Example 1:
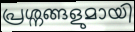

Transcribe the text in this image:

പ്രശ്നങ്ങളുമായി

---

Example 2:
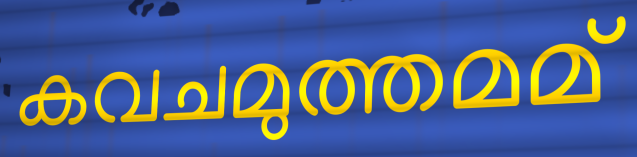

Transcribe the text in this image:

കവചമുത്തമമ്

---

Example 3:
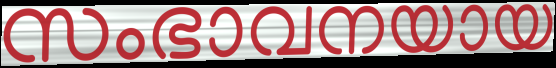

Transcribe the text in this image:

സംഭാവനയായ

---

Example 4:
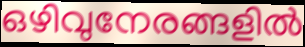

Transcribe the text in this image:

ഒഴിവുനേരങ്ങളിൽ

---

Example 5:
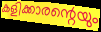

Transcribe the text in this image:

കളിക്കാരന്റെയും